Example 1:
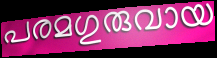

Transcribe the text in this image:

പരമഗുരുവായ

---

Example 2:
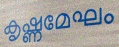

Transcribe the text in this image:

കൃഷ്ണമേഘം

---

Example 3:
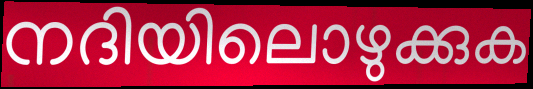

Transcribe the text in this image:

നദിയിലൊഴുക്കുക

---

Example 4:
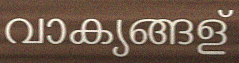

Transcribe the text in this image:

വാക്യങ്ങള്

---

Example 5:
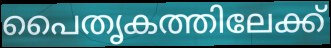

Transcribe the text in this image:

പൈതൃകത്തിലേക്ക്